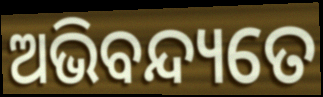
ଅଭିବନ୍ଦ୍ୟତେ